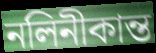
নলিনীকান্ত